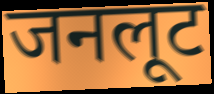
जनलूट